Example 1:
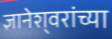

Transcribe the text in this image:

ज्ञानेश्वरांच्या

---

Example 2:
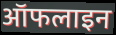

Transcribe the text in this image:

ऑफलाइन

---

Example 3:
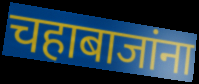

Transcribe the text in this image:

चहाबाजांना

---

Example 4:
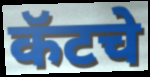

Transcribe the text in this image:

कॅटचे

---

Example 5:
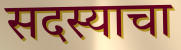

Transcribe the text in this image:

सदस्याचा